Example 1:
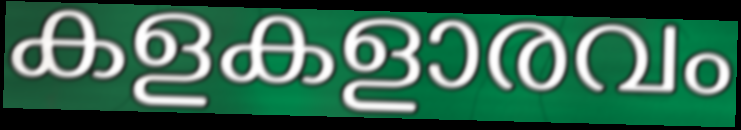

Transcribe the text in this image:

കളകളാരവം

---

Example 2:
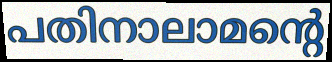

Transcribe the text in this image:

പതിനാലാമന്റെ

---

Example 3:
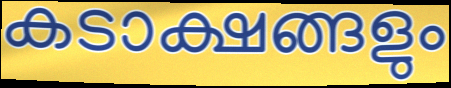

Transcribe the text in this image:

കടാക്ഷങ്ങളും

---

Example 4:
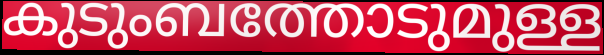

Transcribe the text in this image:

കുടുംബത്തോടുമുള്ള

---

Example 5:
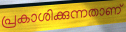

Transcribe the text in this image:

പ്രകാശിക്കുന്നതാണ്